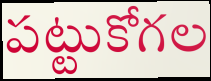
పట్టుకోగల